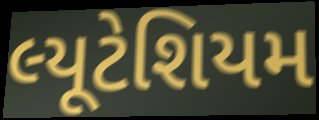
લ્યૂટેશિયમ